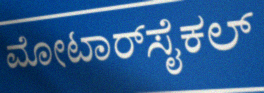
ಮೋಟಾರ್‌ಸೈಕಲ್